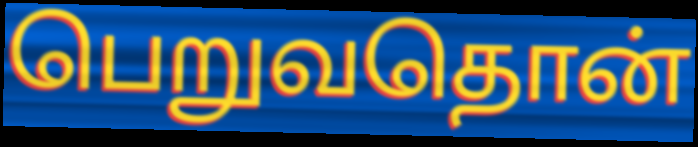
பெறுவதொன்